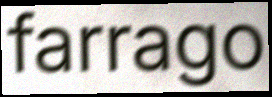
farrago